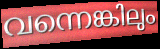
വന്നെങ്കിലും